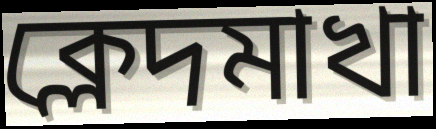
ক্লেদমাখা